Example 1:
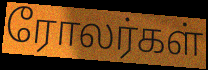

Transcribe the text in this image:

ரோலர்கள்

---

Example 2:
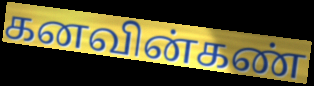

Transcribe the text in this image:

கனவின்கண்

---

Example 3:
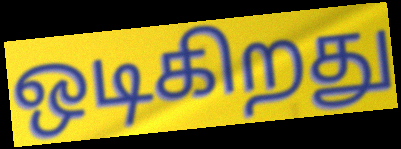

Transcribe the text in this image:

ஒடிகிறது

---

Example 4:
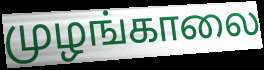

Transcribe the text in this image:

முழங்காலை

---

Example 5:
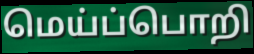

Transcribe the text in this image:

மெய்ப்பொறி